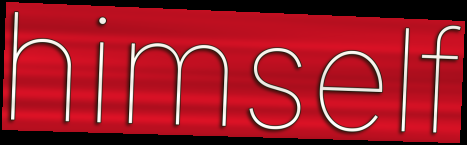
himself